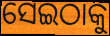
ସେଇଠାକୁ